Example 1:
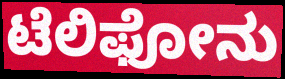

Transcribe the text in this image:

ಟೆಲಿಫೋನು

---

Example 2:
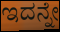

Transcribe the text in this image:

ಇದನ್ನೇ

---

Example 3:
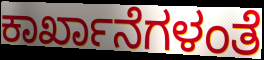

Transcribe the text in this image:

ಕಾರ್ಖಾನೆಗಳಂತೆ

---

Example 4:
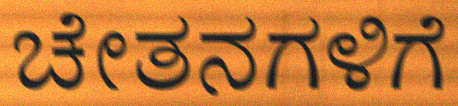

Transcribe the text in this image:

ಚೇತನಗಳಿಗೆ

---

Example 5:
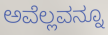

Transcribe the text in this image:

ಅವೆಲ್ಲವನ್ನೂ